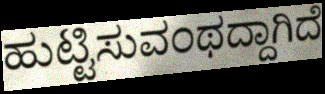
ಹುಟ್ಟಿಸುವಂಥದ್ದಾಗಿದೆ